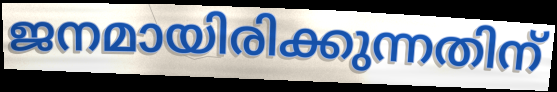
ജനമായിരിക്കുന്നതിന്